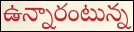
ఉన్నారంటున్న